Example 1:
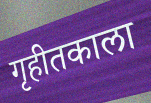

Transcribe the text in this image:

गृहीतकाला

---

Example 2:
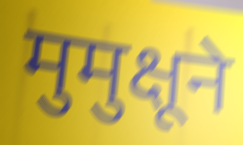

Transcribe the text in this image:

मुमुक्षूने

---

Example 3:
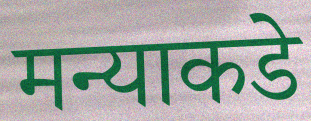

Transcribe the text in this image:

मन्याकडे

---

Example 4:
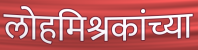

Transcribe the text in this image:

लोहमिश्रकांच्या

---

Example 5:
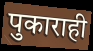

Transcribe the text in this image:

पुकाराही